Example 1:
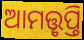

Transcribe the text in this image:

ଆମତ୍ତୃପ୍ତି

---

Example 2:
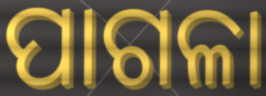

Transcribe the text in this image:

ପାଗଳା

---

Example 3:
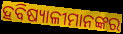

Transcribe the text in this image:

ହବିଷ୍ୟାଳୀମାନଙ୍କର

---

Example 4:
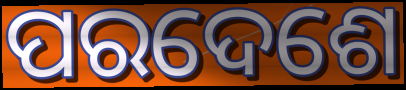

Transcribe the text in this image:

ପରଦେଶେ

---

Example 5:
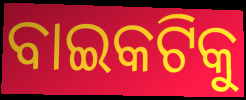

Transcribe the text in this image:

ବାଇକଟିକୁ